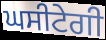
ਘਸੀਟੇਗੀ